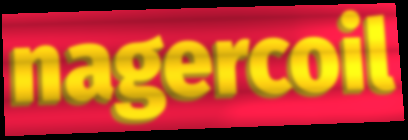
nagercoil